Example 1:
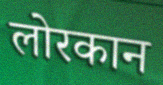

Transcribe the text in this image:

लोरकान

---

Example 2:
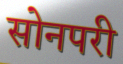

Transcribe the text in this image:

सोनपरी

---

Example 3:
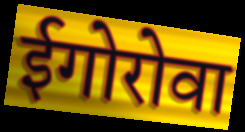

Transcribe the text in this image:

ईगोरोवा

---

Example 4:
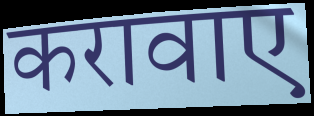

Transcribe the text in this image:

करावाए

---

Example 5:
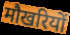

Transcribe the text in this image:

मौखरियों